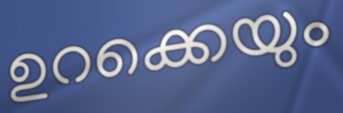
ഉറക്കെയും